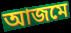
আজমে